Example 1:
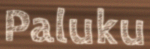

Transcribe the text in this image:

Paluku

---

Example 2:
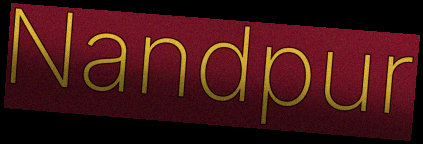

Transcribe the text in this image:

Nandpur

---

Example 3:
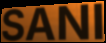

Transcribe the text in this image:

SANI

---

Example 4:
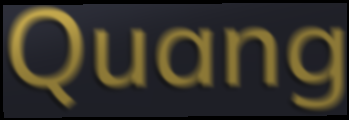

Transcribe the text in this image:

Quang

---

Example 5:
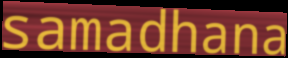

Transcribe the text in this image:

samadhana